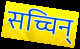
सच्चिन्